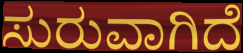
ಸುರುವಾಗಿದೆ